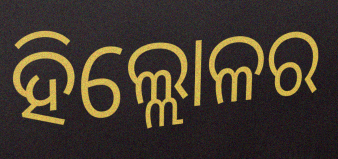
ହିଲ୍ଲୋଳର